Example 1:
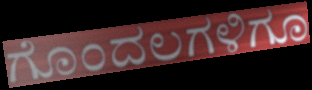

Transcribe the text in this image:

ಗೊಂದಲಗಳಿಗೂ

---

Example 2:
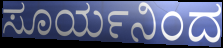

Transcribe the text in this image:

ಸೂರ್ಯನಿಂದ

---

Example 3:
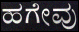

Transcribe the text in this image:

ಹಗೇವು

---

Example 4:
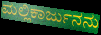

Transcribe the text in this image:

ಮಲ್ಲಿಕಾರ್ಜುನನು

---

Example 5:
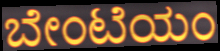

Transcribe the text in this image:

ಬೇಂಟೆಯಂ